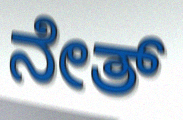
ನೇತ್